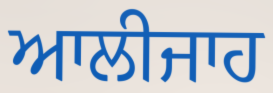
ਆਲੀਜਾਹ